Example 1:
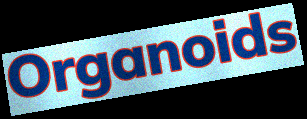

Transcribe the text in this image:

Organoids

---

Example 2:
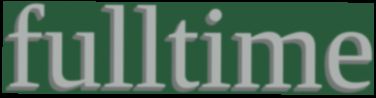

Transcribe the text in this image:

fulltime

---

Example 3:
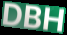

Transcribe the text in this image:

DBH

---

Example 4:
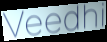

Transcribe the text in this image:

Veedhi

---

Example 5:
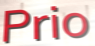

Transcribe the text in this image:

Prio